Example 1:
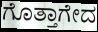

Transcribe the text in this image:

ಗೊತ್ತಾಗೇದ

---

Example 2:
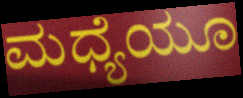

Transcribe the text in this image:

ಮಧ್ಯೆಯೂ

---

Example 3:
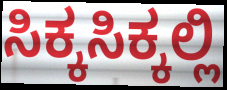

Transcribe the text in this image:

ಸಿಕ್ಕಸಿಕ್ಕಲ್ಲಿ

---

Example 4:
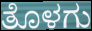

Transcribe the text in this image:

ತೊಳಗು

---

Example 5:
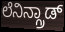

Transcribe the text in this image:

ಲೆನಿನ್ಗ್ರಾಡ್